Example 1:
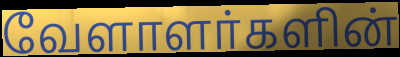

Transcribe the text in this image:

வேளாளர்களின்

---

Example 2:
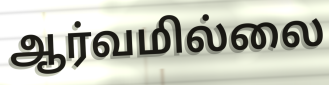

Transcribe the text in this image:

ஆர்வமில்லை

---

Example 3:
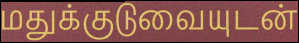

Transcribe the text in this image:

மதுக்குடுவையுடன்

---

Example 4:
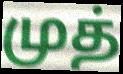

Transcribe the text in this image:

முத்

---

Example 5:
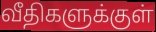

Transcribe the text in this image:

வீதிகளுக்குள்